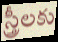
స్త్రీలకు